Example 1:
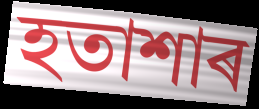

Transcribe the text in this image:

হতাশাৰ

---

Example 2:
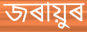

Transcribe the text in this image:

জৰায়ুৰ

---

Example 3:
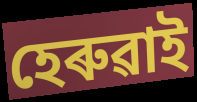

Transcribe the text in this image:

হেৰুৱাই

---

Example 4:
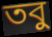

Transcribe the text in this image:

তবু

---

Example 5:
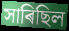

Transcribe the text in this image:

সাৰিছিল